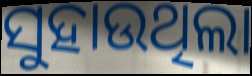
ସୁହାଉଥିଲା